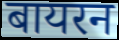
बायरन